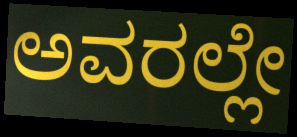
ಅವರಲ್ಲೇ